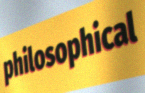
philosophical